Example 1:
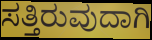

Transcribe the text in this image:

ಸತ್ತಿರುವುದಾಗಿ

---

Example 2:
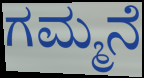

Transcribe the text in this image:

ಗಮ್ಮನೆ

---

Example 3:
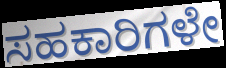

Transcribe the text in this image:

ಸಹಕಾರಿಗಳೇ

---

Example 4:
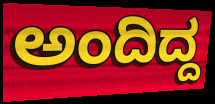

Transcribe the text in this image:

ಅಂದಿದ್ದ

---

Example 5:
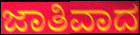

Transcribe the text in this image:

ಜಾತಿವಾದ